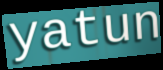
yatun